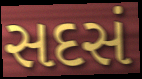
સદસં